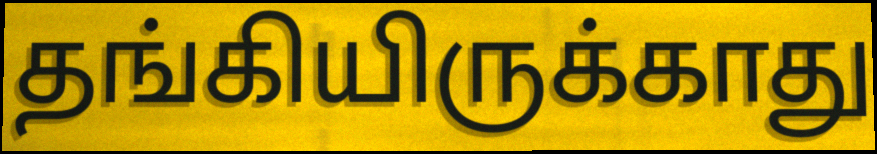
தங்கியிருக்காது